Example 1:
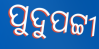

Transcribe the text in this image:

ପୁଦୁପଟ୍ଟୀ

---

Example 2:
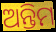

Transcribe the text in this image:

ଅନ୍ତିମ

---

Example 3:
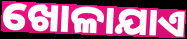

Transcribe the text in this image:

ଖୋଳାଯାଏ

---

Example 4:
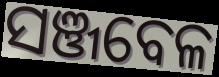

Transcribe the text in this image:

ସଞ୍ଜବେଳ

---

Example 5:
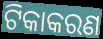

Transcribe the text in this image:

ଟିକାକରଣ